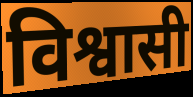
विश्वासी